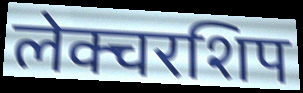
लेक्चरशिप